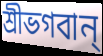
শ্রীভগবান্